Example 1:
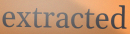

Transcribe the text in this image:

extracted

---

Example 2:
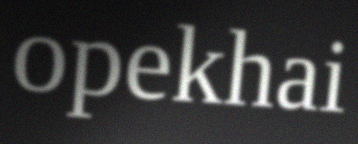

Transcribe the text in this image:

opekhai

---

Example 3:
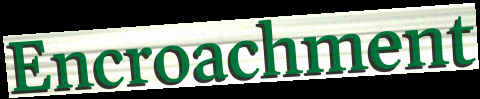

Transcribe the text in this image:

Encroachment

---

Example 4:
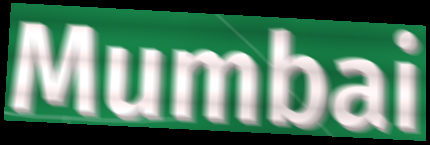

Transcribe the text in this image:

Mumbai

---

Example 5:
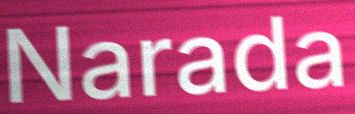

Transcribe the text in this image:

Narada